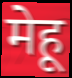
मेहू